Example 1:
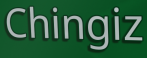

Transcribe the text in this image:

Chingiz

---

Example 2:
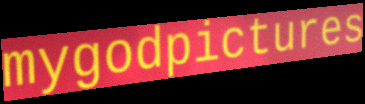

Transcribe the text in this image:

mygodpictures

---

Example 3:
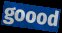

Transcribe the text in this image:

goood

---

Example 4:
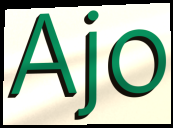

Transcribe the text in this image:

Ajo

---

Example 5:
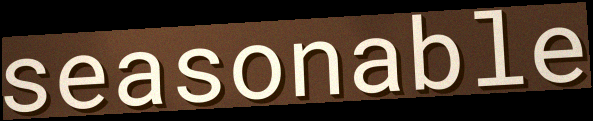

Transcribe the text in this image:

seasonable